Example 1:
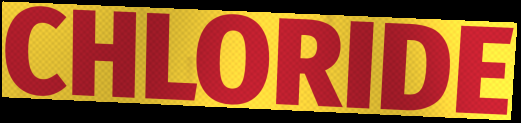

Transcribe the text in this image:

CHLORIDE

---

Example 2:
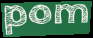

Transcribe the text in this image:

pom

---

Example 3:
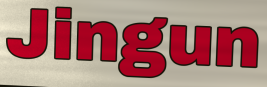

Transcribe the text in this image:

Jingun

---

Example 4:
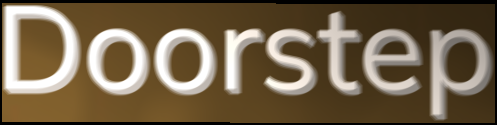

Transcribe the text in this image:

Doorstep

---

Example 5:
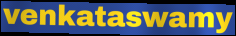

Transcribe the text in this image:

venkataswamy